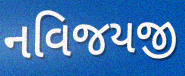
નવિજયજી